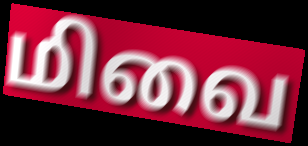
மிவை